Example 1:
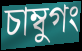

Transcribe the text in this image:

চাম্বুগং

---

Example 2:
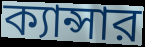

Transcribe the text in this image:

ক্যান্সার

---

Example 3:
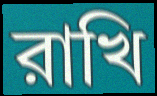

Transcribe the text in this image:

রাখি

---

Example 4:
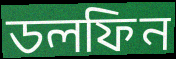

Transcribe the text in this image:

ডলফিন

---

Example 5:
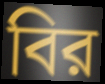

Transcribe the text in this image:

বির